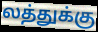
லத்துக்கு